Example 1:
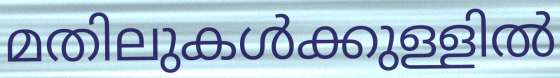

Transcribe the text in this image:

മതിലുകൾക്കുള്ളിൽ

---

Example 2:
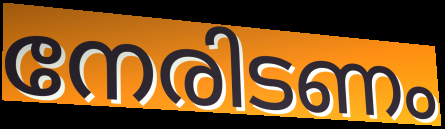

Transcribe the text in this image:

നേരിടണം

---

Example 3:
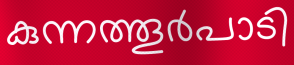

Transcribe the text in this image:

കുന്നത്തൂർപാടി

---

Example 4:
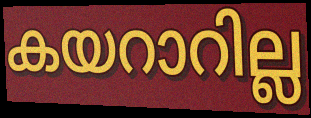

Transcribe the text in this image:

കയറാറില്ല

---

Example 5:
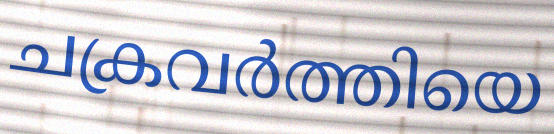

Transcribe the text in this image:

ചക്രവർത്തിയെ